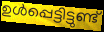
ഉൾപ്പെട്ടിട്ടുണ്ട്